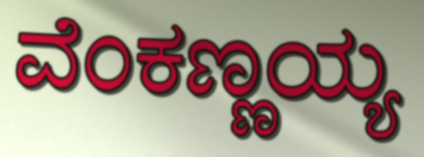
ವೆಂಕಣ್ಣಯ್ಯ